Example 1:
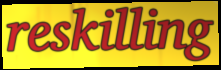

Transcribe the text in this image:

reskilling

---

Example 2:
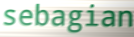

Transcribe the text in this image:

sebagian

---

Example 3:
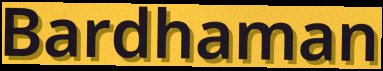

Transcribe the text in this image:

Bardhaman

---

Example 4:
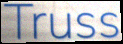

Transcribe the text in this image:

Truss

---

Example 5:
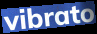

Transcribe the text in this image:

vibrato